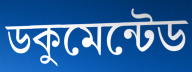
ডকুমেন্টেড